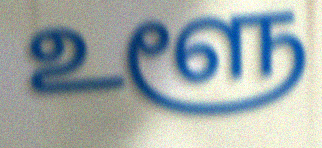
உளூ